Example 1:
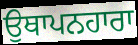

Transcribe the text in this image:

ਉਥਾਪਨਹਾਰਾ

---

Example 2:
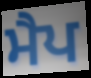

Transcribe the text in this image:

ਮੈਪ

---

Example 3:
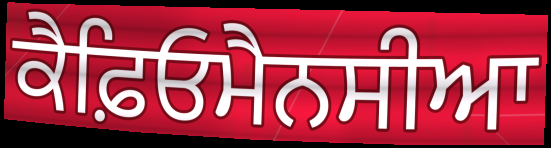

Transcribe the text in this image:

ਕੈਫ਼ਿਓਮੈਨਸੀਆ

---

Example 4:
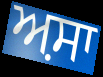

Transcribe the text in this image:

ਅ਼ਸਾ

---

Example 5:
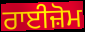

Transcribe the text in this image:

ਰਾਈਜ਼ੋਮ